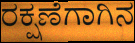
ರಕ್ಷಣೆಗಾಗಿನ